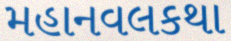
મહાનવલકથા